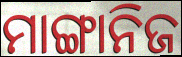
ମାଙ୍ଗାନିଜ